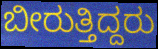
ಬೀರುತ್ತಿದ್ದರು